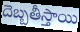
దెబ్బతీస్తాయి